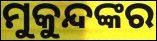
ମୁକୁନ୍ଦଙ୍କର